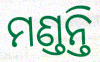
ମଣ୍ଡନ୍ତି